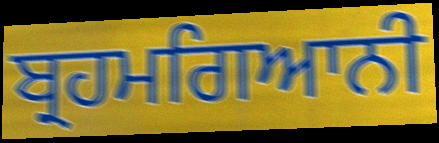
ਬ੍ਰਹਮਗਿਆਨੀ